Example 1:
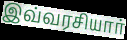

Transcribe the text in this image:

இவ்வரசியார்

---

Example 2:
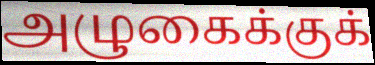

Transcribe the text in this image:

அழுகைக்குக்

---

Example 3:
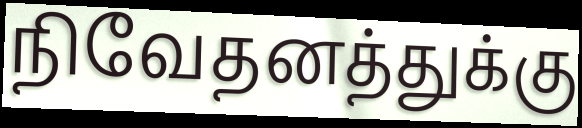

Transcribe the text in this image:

நிவேதனத்துக்கு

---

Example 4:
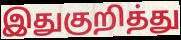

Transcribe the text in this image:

இதுகுறித்து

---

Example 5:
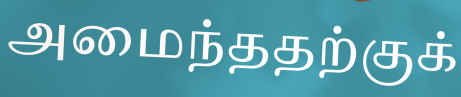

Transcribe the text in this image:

அமைந்ததற்குக்